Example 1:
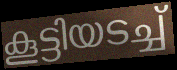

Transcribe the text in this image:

കൂട്ടിയടച്ച്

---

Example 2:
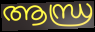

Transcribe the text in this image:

ആന്ധ്ര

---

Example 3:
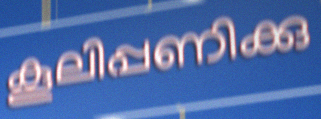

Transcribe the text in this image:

കൂലിപ്പണിക്കു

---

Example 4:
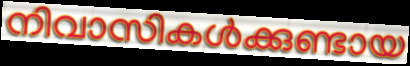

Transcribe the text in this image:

നിവാസികൾക്കുണ്ടായ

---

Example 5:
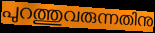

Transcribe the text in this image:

പുറത്തുവരുന്നതിനു